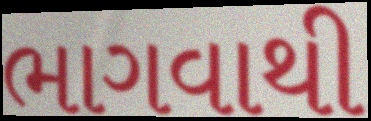
ભાગવાથી